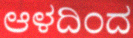
ಆಳದಿಂದ